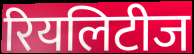
रियलिटीज